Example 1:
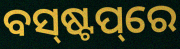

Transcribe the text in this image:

ବସ୍‌ଷ୍ଟପ୍‌ରେ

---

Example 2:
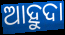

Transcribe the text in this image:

ଆହୁଦା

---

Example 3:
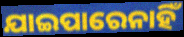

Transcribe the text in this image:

ଯାଇପାରେନାହିଁ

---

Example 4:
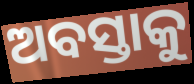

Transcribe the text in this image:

ଅବସ୍ତାକୁ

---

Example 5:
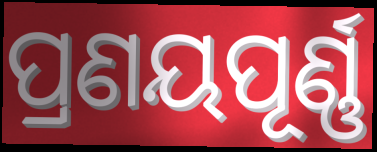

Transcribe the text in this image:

ପ୍ରଣୟପୂର୍ଣ୍ଣ